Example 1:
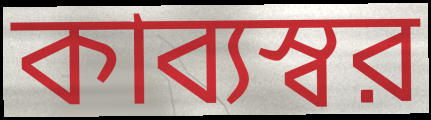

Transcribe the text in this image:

কাব্যস্বর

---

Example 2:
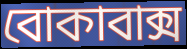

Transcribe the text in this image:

বোকাবাক্স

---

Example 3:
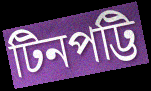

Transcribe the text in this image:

টিনপট্টি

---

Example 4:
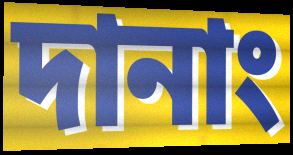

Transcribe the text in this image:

দানাং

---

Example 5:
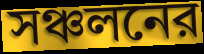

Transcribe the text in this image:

সঞ্চলনের